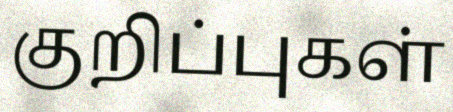
குறிப்புகள்